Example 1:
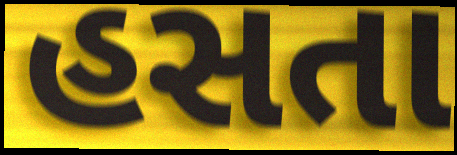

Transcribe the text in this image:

હસતા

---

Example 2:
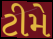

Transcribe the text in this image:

ટીમે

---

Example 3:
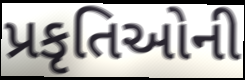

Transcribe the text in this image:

પ્રકૃતિઓની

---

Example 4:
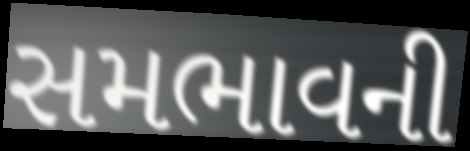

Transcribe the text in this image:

સમભાવની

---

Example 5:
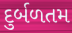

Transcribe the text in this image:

દુર્બળતમ